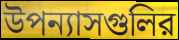
উপন্যাসগুলির